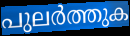
പുലർത്തുക